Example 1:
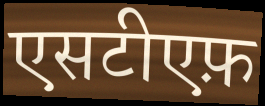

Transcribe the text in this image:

एसटीएफ़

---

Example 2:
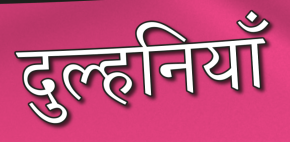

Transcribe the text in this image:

दुल्हनियाँ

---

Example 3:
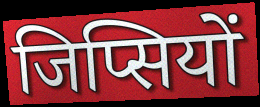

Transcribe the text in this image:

जिप्सियों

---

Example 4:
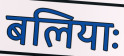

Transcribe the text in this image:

बलियाः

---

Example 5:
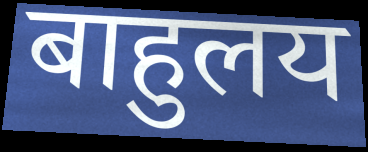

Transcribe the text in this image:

बाहुलय